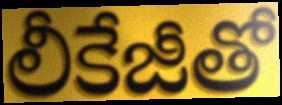
లీకేజీతో